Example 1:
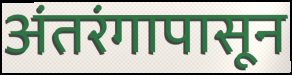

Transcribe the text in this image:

अंतरंगापासून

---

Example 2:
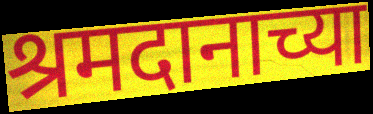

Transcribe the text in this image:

श्रमदानाच्या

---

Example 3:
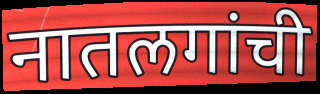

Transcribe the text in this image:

नातलगांची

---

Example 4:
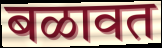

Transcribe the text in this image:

बळावत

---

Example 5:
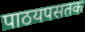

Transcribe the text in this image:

पाठयपसतक